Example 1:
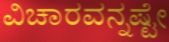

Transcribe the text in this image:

ವಿಚಾರವನ್ನಷ್ಟೇ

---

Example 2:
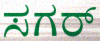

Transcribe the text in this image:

ಸಗರ್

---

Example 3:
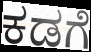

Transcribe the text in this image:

ಕಡಗೆ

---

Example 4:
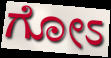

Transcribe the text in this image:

ಗೋಽ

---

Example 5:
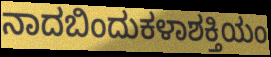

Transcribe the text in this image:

ನಾದಬಿಂದುಕಳಾಶಕ್ತಿಯಂ